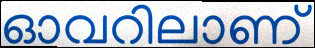
ഓവറിലാണ്